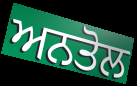
ਅਨਤੋਲ